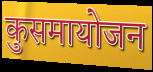
कुसमायोजन